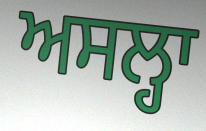
ਅਸਲ੍ਹਾ